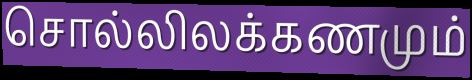
சொல்லிலக்கணமும்